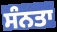
ਸੰਨਤਾ